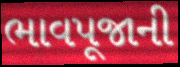
ભાવપૂજાની